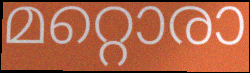
മറ്റൊരാ